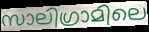
സാലിഗ്രാമിലെ